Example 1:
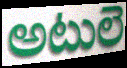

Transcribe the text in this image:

అటులె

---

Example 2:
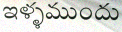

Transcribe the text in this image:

ఇళ్ళముందు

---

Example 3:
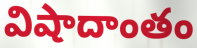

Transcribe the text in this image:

విషాదాంతం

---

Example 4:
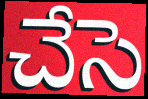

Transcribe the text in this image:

చేసె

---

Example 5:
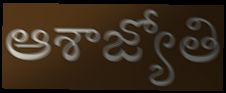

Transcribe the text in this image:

ఆశాజ్యోతి